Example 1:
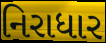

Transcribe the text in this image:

નિરાધાર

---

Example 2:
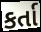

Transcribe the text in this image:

કર્તા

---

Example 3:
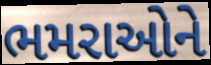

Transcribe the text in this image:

ભમરાઓને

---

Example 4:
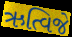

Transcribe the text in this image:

ઋત્વિજે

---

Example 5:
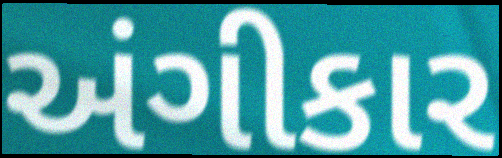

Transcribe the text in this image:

અંગીકાર